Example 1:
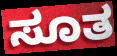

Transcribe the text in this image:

ಸೂತ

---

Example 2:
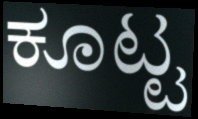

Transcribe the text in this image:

ಕೂಟ್ಟ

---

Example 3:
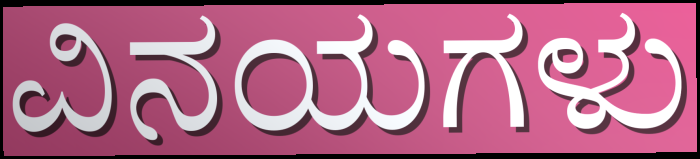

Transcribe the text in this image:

ವಿನಯಗಳು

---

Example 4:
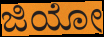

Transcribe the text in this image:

ಜಿಯೋ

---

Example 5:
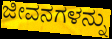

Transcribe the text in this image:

ಜೀವನಗಳನ್ನು